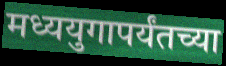
मध्ययुगापर्यंतच्या